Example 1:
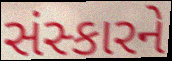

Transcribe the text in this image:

સંસ્કારને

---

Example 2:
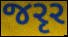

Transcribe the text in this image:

જરૃર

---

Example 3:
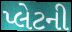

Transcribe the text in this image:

પ્લેટની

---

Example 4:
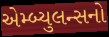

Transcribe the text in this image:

એમ્બ્યુલન્સનો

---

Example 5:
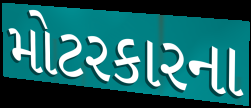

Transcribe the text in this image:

મોટરકારના